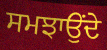
ਸਮਝਾਉੰਦੇ